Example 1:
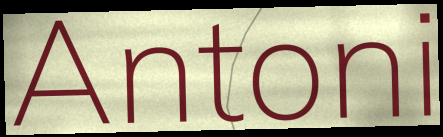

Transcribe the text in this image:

Antoni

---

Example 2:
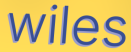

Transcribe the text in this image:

wiles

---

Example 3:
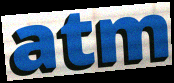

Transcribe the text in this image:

atm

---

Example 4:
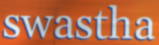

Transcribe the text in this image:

swastha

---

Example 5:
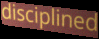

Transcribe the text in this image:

disciplined